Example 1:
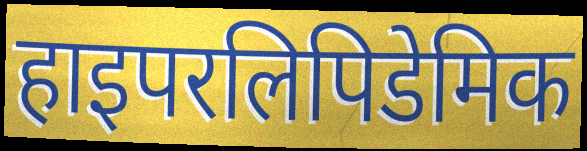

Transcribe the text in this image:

हाइपरलिपिडेमिक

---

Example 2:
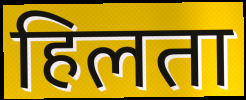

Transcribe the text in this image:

हिलता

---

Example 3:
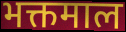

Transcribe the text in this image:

भक्तमाल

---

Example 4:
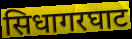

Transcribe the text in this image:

सिधागरघाट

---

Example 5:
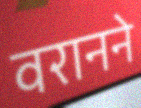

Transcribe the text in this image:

वरानने